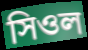
সিওল